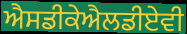
ਐਸਡੀਕੇਐਲਡੀਏਵੀ